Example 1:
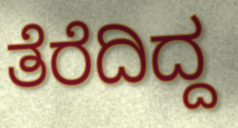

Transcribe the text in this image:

ತೆರೆದಿದ್ದ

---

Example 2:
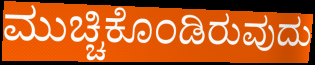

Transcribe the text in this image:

ಮುಚ್ಚಿಕೊಂಡಿರುವುದು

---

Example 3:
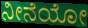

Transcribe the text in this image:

ನೀನೆಯೋ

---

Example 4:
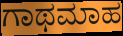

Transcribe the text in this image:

ಗಾಥಮಾಹ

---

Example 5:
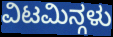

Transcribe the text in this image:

ವಿಟಮಿನ್ಗಳು